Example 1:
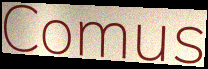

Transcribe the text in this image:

Comus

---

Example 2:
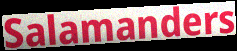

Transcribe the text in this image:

Salamanders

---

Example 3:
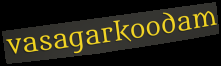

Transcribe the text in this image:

vasagarkoodam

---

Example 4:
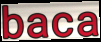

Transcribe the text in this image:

baca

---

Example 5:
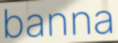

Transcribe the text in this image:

banna